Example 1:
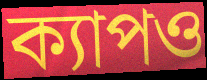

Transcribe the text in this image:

ক্যাপও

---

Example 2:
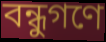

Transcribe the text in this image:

বন্ধুগণে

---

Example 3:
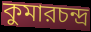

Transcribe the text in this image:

কুমারচন্দ্র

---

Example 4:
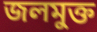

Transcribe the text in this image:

জলমুক্ত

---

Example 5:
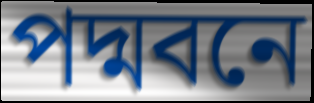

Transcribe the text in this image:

পদ্মবনে